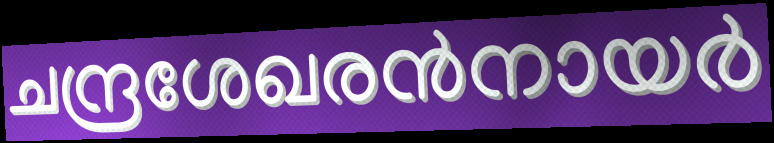
ചന്ദ്രശേഖരൻനായർ